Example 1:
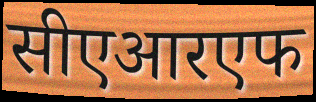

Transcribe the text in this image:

सीएआरएफ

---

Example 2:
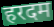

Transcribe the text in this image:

हरदम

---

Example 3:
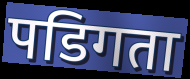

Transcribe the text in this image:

पडिगता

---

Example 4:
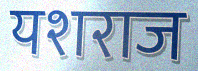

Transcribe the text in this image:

यशराज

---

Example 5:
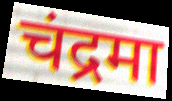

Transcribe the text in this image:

चंद्रमा